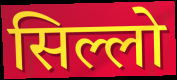
सिल्लो